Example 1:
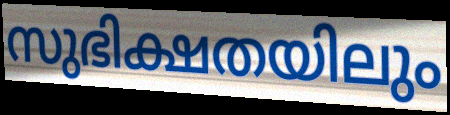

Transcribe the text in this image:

സുഭിക്ഷതയിലും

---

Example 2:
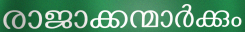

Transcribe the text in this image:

രാജാക്കന്മാർക്കും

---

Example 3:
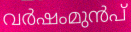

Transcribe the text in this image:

വർഷംമുൻപ്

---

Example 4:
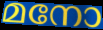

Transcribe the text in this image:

മനോ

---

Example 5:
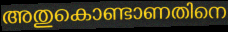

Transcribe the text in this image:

അതുകൊണ്ടാണതിനെ